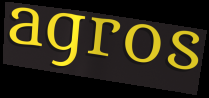
agros